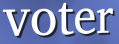
voter